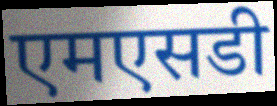
एमएसडी